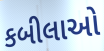
કબીલાઓ